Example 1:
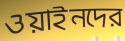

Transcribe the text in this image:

ওয়াইনদের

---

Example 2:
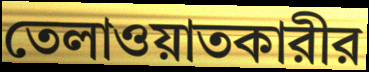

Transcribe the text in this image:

তেলাওয়াতকারীর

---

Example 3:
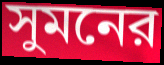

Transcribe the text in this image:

সুমনের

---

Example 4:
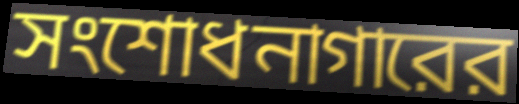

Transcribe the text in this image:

সংশোধনাগারের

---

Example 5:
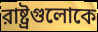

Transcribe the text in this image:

রাষ্ট্রগুলোকে